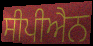
ਸੀਪੀਐਨ